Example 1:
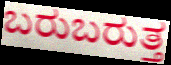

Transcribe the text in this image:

ಬರುಬರುತ್ತ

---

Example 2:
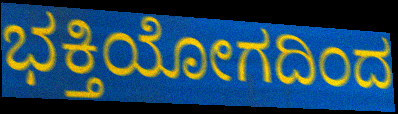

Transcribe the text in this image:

ಭಕ್ತಿಯೋಗದಿಂದ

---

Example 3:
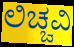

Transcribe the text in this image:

ಲಿಚ್ಚವಿ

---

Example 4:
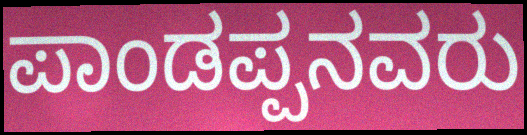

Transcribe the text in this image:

ಪಾಂಡಪ್ಪನವರು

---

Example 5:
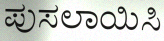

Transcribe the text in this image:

ಪುಸಲಾಯಿಸಿ